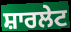
ਸ਼ਾਰਲੇਟ